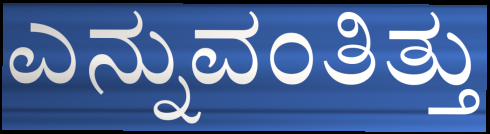
ಎನ್ನುವಂತಿತ್ತು